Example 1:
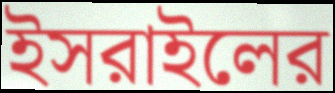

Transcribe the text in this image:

ইসরাইলের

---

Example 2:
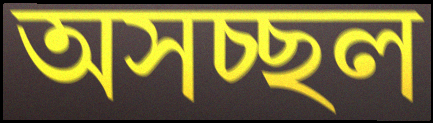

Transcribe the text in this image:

অসচ্ছল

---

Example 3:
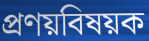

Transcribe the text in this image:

প্রণয়বিষয়ক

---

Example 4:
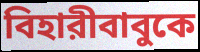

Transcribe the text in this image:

বিহারীবাবুকে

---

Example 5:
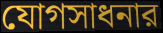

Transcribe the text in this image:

যোগসাধনার